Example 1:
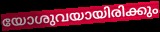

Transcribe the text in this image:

യോശുവയായിരിക്കും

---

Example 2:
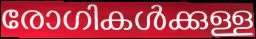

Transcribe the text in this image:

രോഗികൾക്കുള്ള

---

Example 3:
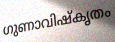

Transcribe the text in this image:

ഗുണാവിഷ്കൃതം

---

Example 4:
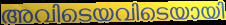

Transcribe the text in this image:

അവിടെയവിടെയായി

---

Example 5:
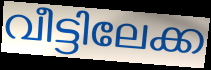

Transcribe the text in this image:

വീട്ടിലേക്ക